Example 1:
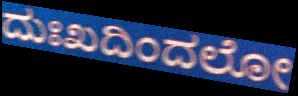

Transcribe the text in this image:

ದುಃಖದಿಂದಲೋ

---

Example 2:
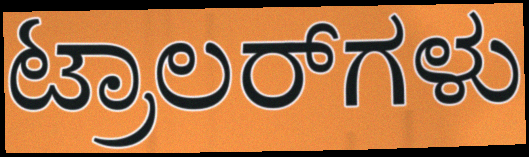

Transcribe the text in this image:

ಟ್ರಾಲರ್‌ಗಳು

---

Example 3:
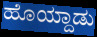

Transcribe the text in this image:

ಹೊಯ್ದಾಡು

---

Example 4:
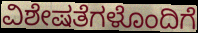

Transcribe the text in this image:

ವಿಶೇಷತೆಗಳೊಂದಿಗೆ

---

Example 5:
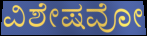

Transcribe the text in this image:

ವಿಶೇಷವೋ